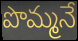
పొమ్మనే